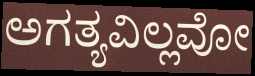
ಅಗತ್ಯವಿಲ್ಲವೋ